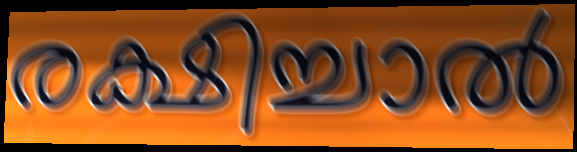
രക്ഷിച്ചാൽ